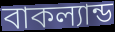
বাকল্যান্ড